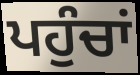
ਪਹੁੰਚਾਂ